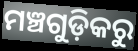
ମଞ୍ଚଗୁଡ଼ିକରୁ